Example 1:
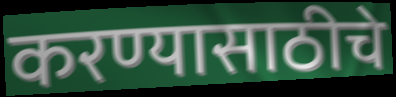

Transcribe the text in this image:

करण्यासाठीचे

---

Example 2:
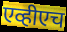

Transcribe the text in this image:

एव्हीएच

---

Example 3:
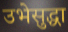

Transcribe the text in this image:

उभेसुद्धा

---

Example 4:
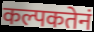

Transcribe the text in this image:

कल्पकतेनं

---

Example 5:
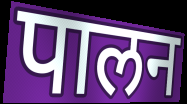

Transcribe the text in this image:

पालन